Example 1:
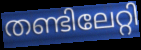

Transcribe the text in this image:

തണ്ടിലേറ്റി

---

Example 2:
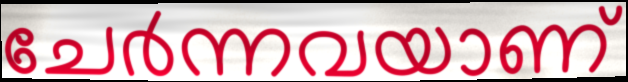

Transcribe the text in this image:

ചേർന്നവയാണ്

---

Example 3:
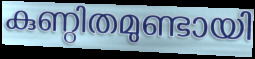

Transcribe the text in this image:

കുണ്ഠിതമുണ്ടായി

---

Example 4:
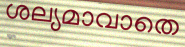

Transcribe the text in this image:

ശല്യമാവാതെ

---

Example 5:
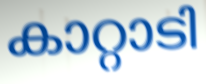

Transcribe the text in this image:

കാറ്റാടി